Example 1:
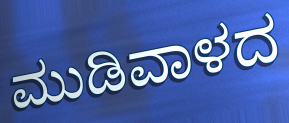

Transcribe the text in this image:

ಮುಡಿವಾಳದ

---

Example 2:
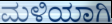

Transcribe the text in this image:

ಮಳಿಯಾಗಿ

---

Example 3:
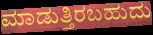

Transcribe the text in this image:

ಮಾಡುತ್ತಿರಬಹುದು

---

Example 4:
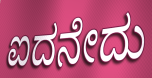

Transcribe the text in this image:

ಐದನೇದು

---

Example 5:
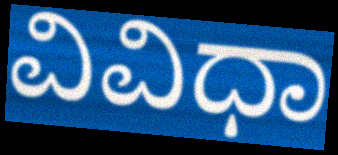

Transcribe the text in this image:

ವಿವಿಧಾ